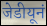
जेडीयूनं